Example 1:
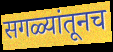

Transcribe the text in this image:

सगळ्यांतूनच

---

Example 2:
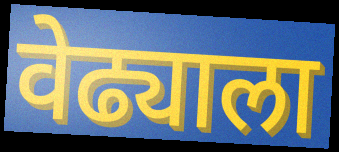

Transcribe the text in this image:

वेढ्याला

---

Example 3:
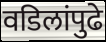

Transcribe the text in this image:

वडिलांपुढे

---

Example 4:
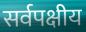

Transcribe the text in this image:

सर्वपक्षीय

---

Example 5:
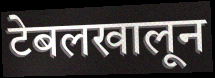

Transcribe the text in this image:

टेबलखालून